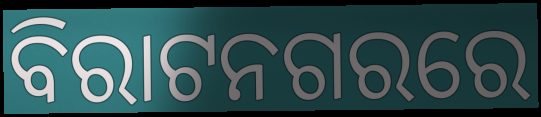
ବିରାଟନଗରରେ